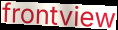
frontview